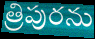
త్రిపురను